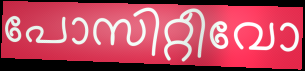
പോസിറ്റീവോ